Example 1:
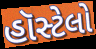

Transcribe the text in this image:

હૉસ્ટેલો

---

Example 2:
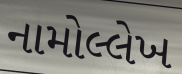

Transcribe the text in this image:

નામોલ્લેખ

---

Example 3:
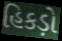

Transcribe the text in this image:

હિકડ઼ો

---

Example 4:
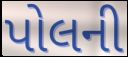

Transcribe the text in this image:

પોલની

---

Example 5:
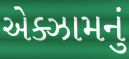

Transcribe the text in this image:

એક્ઝામનું